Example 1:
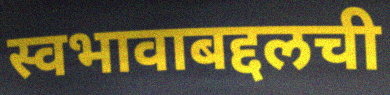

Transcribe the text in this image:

स्वभावाबद्दलची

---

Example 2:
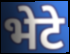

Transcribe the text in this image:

भेटे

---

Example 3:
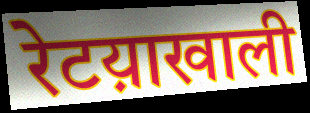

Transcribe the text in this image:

रेटय़ाखाली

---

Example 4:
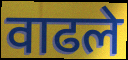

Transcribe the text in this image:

वाढले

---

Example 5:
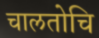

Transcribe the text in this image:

चालतोचि